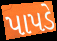
પાપડે